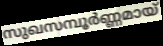
സുഖസമ്പൂർണ്ണമായ്